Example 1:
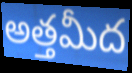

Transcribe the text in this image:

అత్తమీద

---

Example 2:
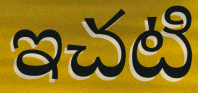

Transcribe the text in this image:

ఇచటి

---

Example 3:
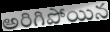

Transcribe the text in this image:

అరిగిపోయిన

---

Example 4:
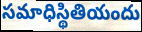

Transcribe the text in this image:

సమాధిస్థితియందు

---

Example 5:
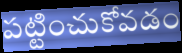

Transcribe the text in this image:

పట్టించుకోవడం